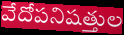
వేదోపనిషత్తుల